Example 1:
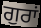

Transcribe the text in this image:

ਗੁਰਾਂ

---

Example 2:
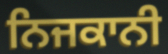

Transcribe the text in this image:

ਨਿਜਕਾਨੀ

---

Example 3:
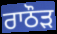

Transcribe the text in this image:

ਰਾਠੌੜ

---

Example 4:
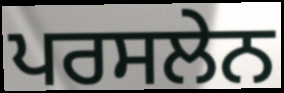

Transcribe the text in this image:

ਪਰਸਲੇਨ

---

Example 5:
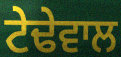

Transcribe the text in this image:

ਟੇਢੇਵਾਲ